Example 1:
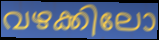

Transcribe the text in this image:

വഴക്കിലോ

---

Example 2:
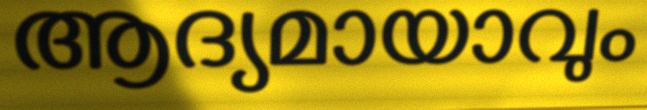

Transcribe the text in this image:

ആദ്യമായാവും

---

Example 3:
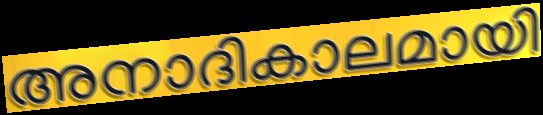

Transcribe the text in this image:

അനാദികാലമായി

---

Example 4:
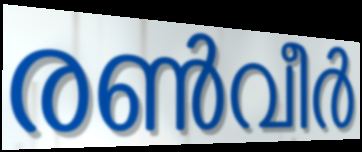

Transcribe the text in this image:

രൺവീർ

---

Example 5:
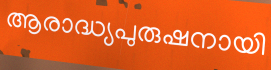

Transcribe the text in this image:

ആരാദ്ധ്യപുരുഷനായി